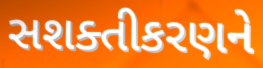
સશક્તીકરણને